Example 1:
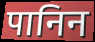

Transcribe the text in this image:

पानिन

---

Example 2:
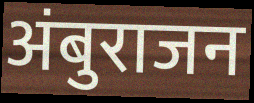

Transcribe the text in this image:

अंबुराजन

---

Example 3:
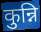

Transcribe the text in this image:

कुन्नि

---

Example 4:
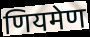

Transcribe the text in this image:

णियमेण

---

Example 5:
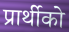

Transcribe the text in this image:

प्रार्थीको